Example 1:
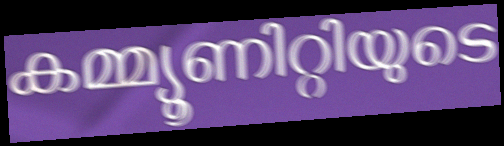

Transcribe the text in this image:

കമ്മ്യൂണിറ്റിയുടെ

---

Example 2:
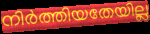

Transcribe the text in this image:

നിർത്തിയതേയില്ല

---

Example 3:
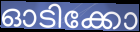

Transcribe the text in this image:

ഓടിക്കോ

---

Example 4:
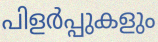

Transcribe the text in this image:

പിളർപ്പുകളും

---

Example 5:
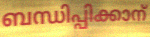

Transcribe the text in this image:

ബന്ധിപ്പിക്കാന്